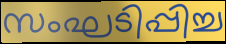
സംഘടിപ്പിച്ച